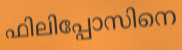
ഫിലിപ്പോസിനെ